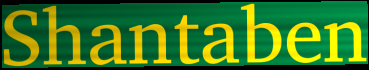
Shantaben